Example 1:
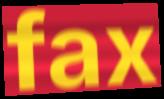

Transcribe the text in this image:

fax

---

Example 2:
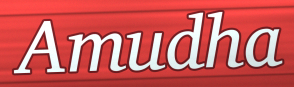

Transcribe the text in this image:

Amudha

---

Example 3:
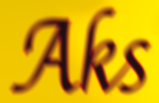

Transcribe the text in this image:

Aks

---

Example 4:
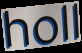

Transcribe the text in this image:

holl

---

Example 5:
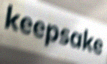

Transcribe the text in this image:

keepsake